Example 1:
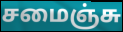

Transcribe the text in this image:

சமைஞ்சு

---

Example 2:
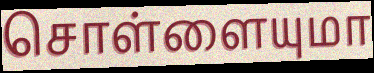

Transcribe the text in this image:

சொள்ளையுமா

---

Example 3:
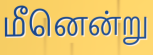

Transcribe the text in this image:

மீனென்று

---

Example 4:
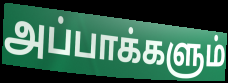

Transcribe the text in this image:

அப்பாக்களும்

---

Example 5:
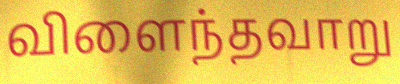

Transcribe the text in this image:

விளைந்தவாறு